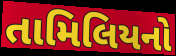
તામિલિયનો